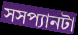
সসপ্যানটা